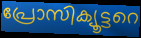
പ്രോസിക്യൂട്ടറെ